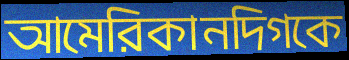
আমেরিকানদিগকে